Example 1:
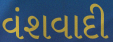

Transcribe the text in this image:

વંશવાદી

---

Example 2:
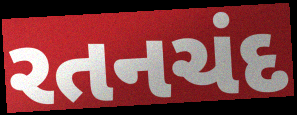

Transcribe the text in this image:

રતનચંદ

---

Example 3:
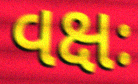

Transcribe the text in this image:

વક્ષઃ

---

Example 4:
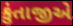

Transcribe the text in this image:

કુંતાજીએ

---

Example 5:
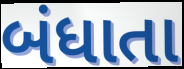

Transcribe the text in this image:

બંધાતા